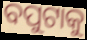
ବପୁଟାକୁ